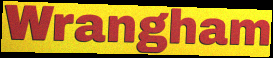
Wrangham